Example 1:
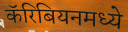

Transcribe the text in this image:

कॅरिबियनमध्ये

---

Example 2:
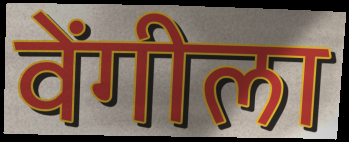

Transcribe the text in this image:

वेंगीला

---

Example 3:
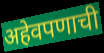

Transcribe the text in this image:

अहेवपणाची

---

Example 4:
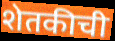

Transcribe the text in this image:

शेतकीची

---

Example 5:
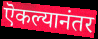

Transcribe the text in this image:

ऎकल्यानंतर